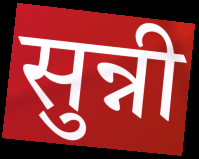
सुन्नी